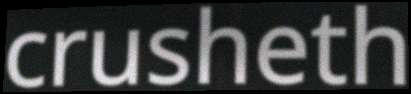
crusheth